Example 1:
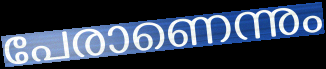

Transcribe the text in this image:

പേരാണെന്നും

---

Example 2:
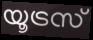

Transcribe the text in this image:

യൂട്രസ്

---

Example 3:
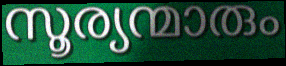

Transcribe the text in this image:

സൂര്യന്മാരും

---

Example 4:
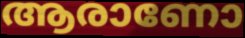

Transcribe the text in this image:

ആരാണോ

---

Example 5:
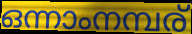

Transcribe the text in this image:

ഒന്നാംനമ്പര്